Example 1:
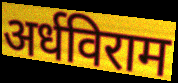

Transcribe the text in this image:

अर्धविराम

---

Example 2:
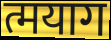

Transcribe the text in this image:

त्मयाग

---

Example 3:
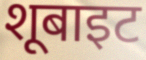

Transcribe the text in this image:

शूबाइट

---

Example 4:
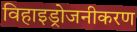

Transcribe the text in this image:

विहाइड्रोजनीकरण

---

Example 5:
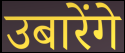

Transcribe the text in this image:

उबारेंगे